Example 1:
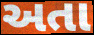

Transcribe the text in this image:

અતા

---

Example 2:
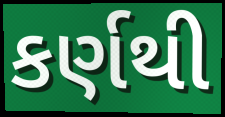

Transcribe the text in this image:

કર્ણથી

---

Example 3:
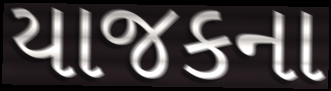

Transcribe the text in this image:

યાજકના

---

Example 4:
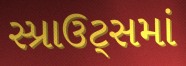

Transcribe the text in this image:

સ્પ્રાઉટ્સમાં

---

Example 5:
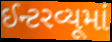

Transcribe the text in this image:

ઈન્ટરવ્યૂમાં